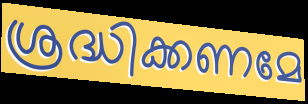
ശ്രദ്ധിക്കണമേ